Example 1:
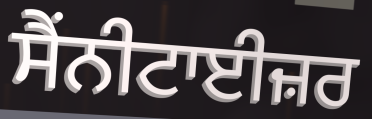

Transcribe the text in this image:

ਸੈਂਨੀਟਾਈਜ਼ਰ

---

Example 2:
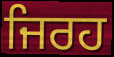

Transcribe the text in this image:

ਜਿਰਹ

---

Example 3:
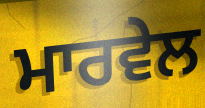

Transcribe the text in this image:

ਮਾਰਵੇਲ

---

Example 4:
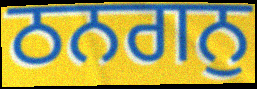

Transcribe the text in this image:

ਠਨਗਨੁ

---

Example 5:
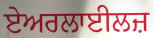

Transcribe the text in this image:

ਏਅਰਲਾਈਲਜ਼